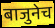
बाजुनेच